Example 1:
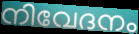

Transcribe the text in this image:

നിവേദനം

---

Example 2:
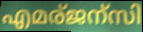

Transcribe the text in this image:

എമര്ജന്സി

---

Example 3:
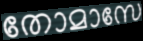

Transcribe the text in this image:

തോമാസേ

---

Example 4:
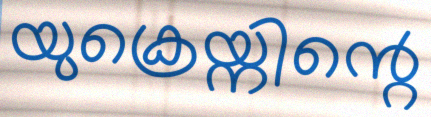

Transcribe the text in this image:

യുക്രെയ്നിന്റെ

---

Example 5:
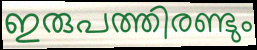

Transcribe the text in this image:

ഇരുപത്തിരണ്ടും